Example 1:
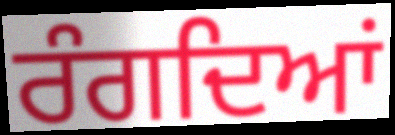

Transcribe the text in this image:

ਰੰਗਦਿਆਂ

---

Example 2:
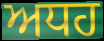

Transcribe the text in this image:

ਅਧਹ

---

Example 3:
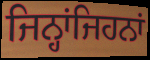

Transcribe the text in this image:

ਜਿਨ੍ਹਾਂਜਿਹਨਾਂ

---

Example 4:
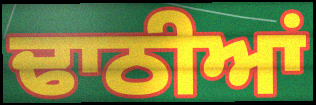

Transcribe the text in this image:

ਢਾਠੀਆਂ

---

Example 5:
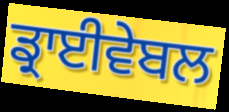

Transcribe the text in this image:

ਡ੍ਰਾਈਵੇਬਲ